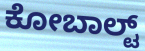
ಕೋಬಾಲ್ಟ್